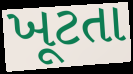
ખૂટતા